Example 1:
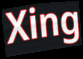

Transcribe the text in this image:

Xing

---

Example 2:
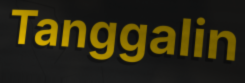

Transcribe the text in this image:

Tanggalin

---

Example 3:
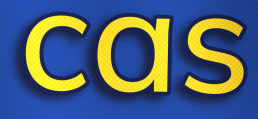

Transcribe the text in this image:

cas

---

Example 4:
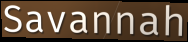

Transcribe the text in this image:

Savannah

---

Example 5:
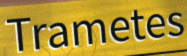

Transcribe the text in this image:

Trametes